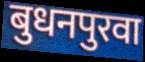
बुधनपुरवा